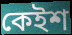
কেইশ